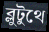
ব্লুটুথে